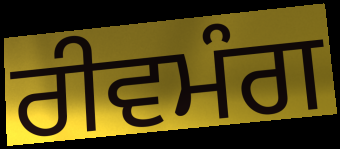
ਰੀਵਮੰਗ